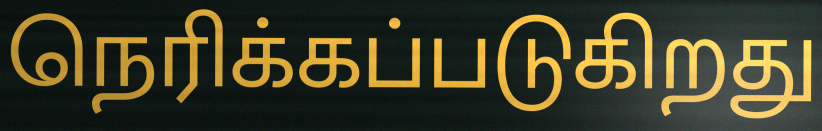
நெரிக்கப்படுகிறது